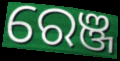
ରେଞ୍ଜ